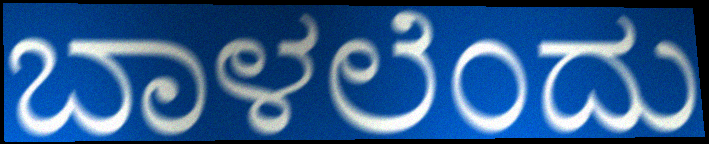
ಬಾಳಲೆಂದು